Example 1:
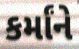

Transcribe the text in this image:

કર્માંને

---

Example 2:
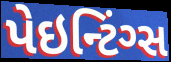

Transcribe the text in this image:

પેઇન્ટિંગ્સ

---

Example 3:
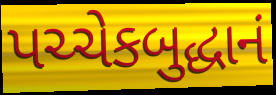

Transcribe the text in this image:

પચ્ચેકબુદ્ધાનં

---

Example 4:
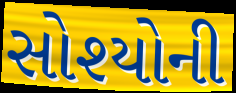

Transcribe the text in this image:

સોશ્યોની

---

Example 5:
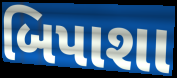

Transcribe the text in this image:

બિપાશા